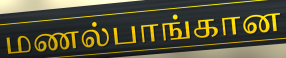
மணல்பாங்கான